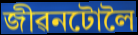
জীৱনটোলৈ